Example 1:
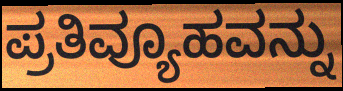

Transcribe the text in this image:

ಪ್ರತಿವ್ಯೂಹವನ್ನು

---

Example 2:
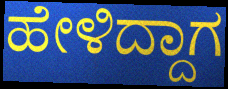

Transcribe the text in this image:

ಹೇಳಿದ್ದಾಗ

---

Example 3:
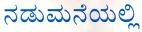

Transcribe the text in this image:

ನಡುಮನೆಯಲ್ಲಿ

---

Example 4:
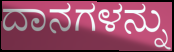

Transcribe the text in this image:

ದಾನಗಳನ್ನು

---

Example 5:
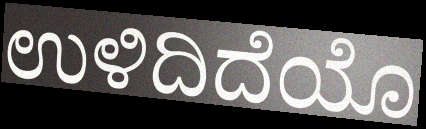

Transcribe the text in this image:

ಉಳಿದಿದೆಯೊ